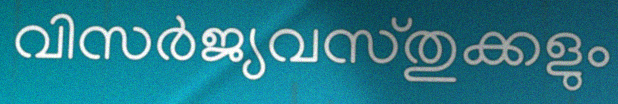
വിസർജ്യവസ്തുക്കളും